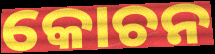
କୋଚନ